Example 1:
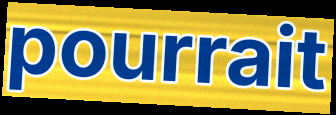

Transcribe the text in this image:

pourrait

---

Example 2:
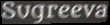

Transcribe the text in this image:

Sugreeva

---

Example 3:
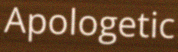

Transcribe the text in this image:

Apologetic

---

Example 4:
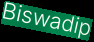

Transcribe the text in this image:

Biswadip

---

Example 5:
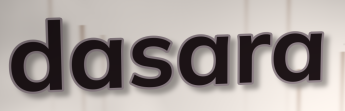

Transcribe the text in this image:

dasara